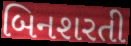
બિનશરતી